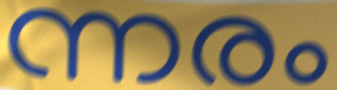
ന്നരം